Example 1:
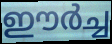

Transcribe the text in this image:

ഈർച്ച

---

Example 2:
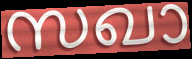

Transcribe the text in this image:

സഖാ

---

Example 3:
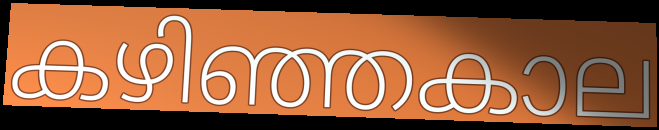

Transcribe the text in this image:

കഴിഞ്ഞകാല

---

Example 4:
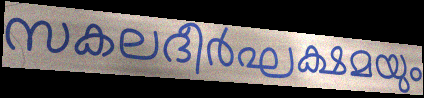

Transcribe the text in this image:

സകലദീർഘക്ഷമയും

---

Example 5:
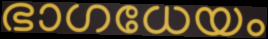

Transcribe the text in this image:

ഭാഗധേയം